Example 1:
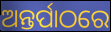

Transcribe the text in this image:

ଅନ୍ତର୍ପାଠରେ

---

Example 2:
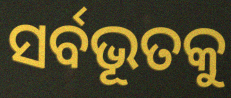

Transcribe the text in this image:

ସର୍ବଭୂତକୁ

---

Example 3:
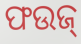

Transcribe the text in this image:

ଫଉଜ୍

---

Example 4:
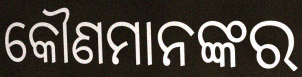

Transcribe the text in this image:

କୌଣମାନଙ୍କର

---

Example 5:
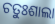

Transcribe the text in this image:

ଚତୁଃଶାଲା